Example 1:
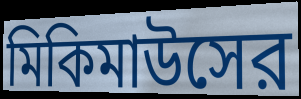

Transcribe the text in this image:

মিকিমাউসের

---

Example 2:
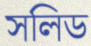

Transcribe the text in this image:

সলিড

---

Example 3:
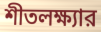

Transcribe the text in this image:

শীতলক্ষ্যার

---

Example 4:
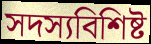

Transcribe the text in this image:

সদস্যবিশিষ্ট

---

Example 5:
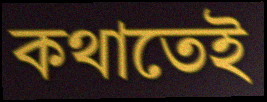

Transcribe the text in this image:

কথাতেই